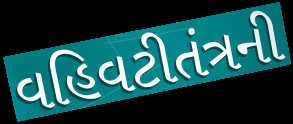
વહિવટીતંત્રની